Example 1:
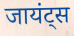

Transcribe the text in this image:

जायंट्स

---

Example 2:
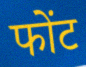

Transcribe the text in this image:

फोंट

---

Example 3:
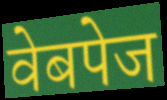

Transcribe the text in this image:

वेबपेज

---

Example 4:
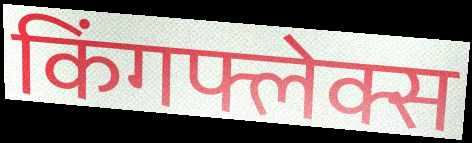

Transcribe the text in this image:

किंगफ्लेक्स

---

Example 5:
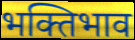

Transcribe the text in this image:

भक्तिभाव